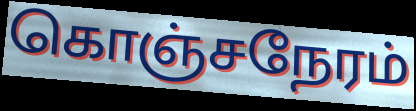
கொஞ்சநேரம்